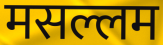
मसल्लम